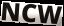
NCW